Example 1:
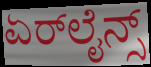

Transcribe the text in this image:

ಏರ್‌ಲೈನ್ಸ್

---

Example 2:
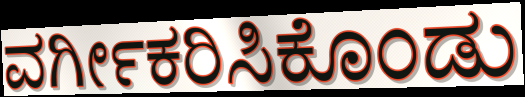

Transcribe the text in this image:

ವರ್ಗೀಕರಿಸಿಕೊಂಡು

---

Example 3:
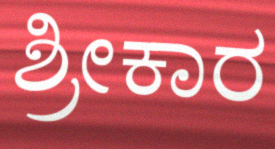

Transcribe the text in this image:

ಶ್ರೀಕಾರ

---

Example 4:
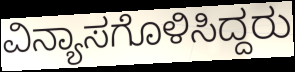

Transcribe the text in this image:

ವಿನ್ಯಾಸಗೊಳಿಸಿದ್ದರು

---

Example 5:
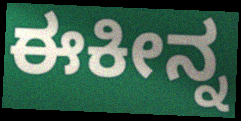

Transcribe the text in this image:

ಈಕೀನ್ನ